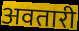
अवतारी